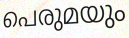
പെരുമയും